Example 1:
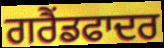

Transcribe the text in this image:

ਗਰੈਂਡਫਾਦਰ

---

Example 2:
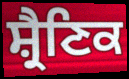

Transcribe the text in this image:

ਸ਼੍ਰੈਣਿਕ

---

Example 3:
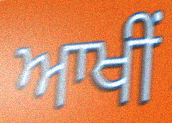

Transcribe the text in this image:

ਆਖੀਂ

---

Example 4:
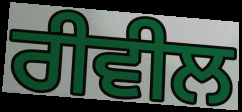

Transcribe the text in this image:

ਰੀਵੀਲ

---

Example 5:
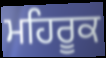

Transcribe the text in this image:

ਮਹਿਰੂਕ